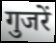
गुजरें